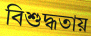
বিশুদ্ধতায়